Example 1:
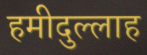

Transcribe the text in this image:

हमीदुल्लाह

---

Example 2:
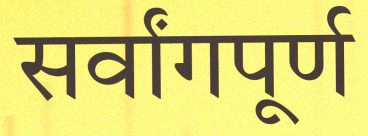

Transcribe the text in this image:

सर्वांगपूर्ण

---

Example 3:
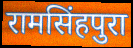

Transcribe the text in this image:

रामसिंहपुरा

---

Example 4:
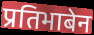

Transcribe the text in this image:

प्रतिभाबेन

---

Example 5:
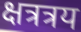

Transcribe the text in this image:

क्षत्रत्रय